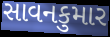
સાવનકુમાર